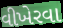
વીખેરવા